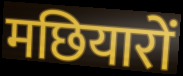
मछियारों